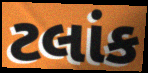
ટલાંક